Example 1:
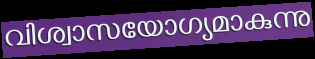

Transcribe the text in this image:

വിശ്വാസയോഗ്യമാകുന്നു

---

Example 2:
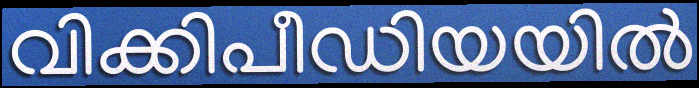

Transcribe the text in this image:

വിക്കിപീഡിയയിൽ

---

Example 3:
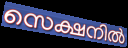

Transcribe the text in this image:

സെക്ഷനിൽ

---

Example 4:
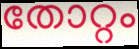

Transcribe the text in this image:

തോറ്റം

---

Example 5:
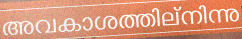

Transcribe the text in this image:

അവകാശത്തില്നിന്നു